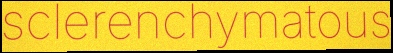
sclerenchymatous